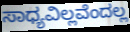
ಸಾಧ್ಯವಿಲ್ಲವೆಂದಲ್ಲ